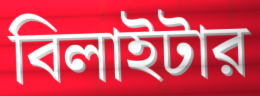
বিলাইটার